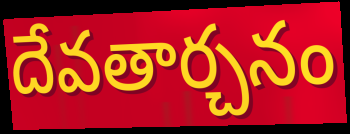
దేవతార్చనం